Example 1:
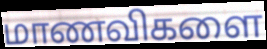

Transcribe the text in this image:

மாணவிகளை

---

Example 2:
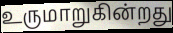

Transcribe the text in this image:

உருமாறுகின்றது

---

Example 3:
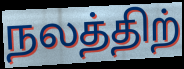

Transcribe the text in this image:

நலத்திற்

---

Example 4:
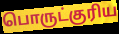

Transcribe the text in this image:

பொருட்குரிய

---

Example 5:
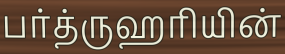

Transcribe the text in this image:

பர்த்ருஹரியின்